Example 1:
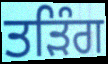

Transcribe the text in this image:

ਤੜਿੰਗ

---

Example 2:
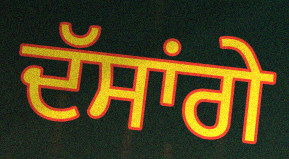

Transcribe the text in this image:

ਦੱਸਾਂਗੇ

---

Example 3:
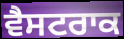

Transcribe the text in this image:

ਵੈਸਟਰਾਕ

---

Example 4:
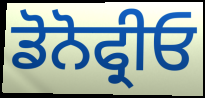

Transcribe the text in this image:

ਡੋਨੋਫ੍ਰੀਓ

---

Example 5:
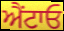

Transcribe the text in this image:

ਐਂਟਾਓ